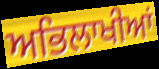
ਅਭਿਲਾਖੀਆਂ